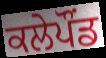
ਕਲੇਪੌਂਡ